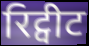
रिट्वीट